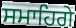
ਸਮਾਹਿਗੇ